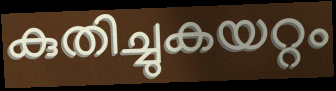
കുതിച്ചുകയറ്റം